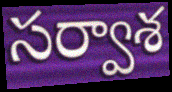
సర్వాశ